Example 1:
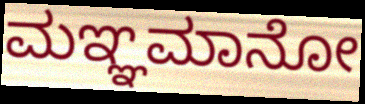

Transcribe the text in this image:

ಮಞ್ಞಮಾನೋ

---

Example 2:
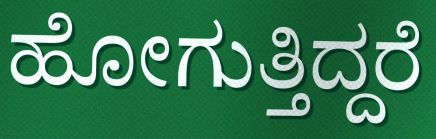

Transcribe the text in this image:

ಹೋಗುತ್ತಿದ್ದರೆ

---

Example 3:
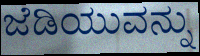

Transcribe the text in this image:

ಜೆಡಿಯುವನ್ನು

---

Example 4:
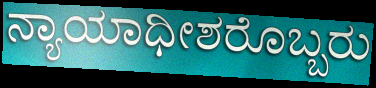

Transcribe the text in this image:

ನ್ಯಾಯಾಧೀಶರೊಬ್ಬರು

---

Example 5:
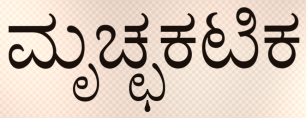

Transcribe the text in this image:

ಮೃಚ್ಛಕಟಿಕ